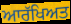
ਆਰੱਖਿਅਤ